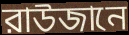
রাউজানে